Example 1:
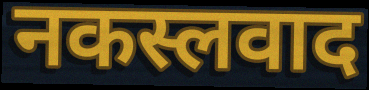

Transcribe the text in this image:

नकस्लवाद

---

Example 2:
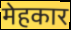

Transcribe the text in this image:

मेहकार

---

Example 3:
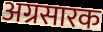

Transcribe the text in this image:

अग्रसारक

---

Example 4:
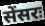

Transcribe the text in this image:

सेंसरः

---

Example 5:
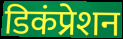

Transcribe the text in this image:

डिकंप्रेशन